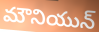
మౌనియున్